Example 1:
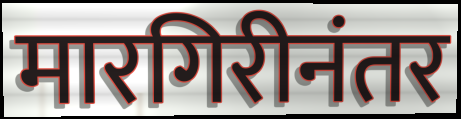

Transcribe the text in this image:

मारगिरीनंतर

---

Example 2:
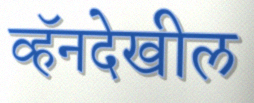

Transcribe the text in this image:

व्हॅनदेखील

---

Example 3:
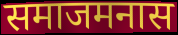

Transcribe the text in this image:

समाजमनास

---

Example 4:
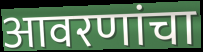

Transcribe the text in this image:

आवरणांचा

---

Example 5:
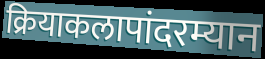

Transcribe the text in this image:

क्रियाकलापांदरम्यान